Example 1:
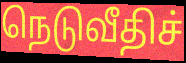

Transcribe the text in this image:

நெடுவீதிச்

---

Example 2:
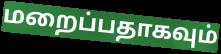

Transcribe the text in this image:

மறைப்பதாகவும்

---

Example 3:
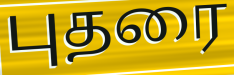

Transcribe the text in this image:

புதரை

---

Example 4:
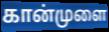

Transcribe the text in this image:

கான்முளை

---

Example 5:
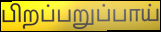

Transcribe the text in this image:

பிறப்பறுப்பாய்